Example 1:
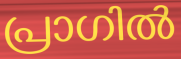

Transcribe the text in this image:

പ്രാഗിൽ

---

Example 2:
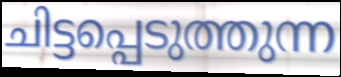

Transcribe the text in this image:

ചിട്ടപ്പെടുത്തുന്ന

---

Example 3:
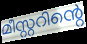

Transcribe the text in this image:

മീസ്റ്ററിന്റെ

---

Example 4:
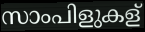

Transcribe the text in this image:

സാംപിളുകള്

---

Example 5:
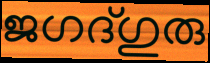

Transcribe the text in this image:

ജഗദ്ഗുരു